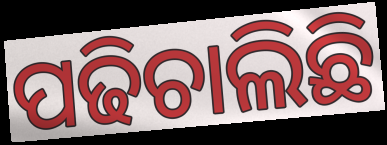
ପଢିଚାଲିଛି